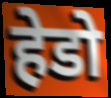
हेडो